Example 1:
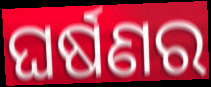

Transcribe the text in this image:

ଘର୍ଷଣର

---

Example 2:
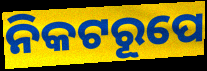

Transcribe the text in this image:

ନିକଟରୂପେ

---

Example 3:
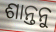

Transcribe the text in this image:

ଶାନ୍ତନୁ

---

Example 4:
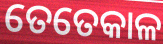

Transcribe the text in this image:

ତେତେକାଳ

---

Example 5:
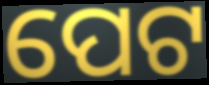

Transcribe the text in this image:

ପେଟ